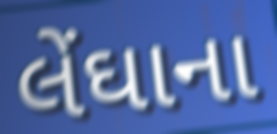
લેંઘાના